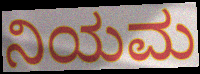
ನಿಯಮ